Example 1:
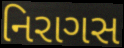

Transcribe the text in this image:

નિરાગસ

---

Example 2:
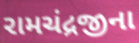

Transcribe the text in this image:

રામચંદ્રજીના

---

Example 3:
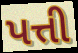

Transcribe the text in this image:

પત્તી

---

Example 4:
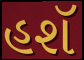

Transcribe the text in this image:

હશૅ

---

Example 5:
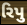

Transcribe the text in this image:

રિપુ